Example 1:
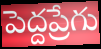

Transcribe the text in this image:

పెద్దప్రేగు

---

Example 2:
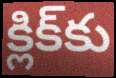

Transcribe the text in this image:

క్లిక్‌కు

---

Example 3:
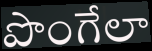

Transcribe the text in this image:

పొంగేలా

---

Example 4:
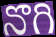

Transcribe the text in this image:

నొగి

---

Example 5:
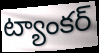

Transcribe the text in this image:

ట్యాంకర్